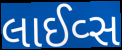
લાઈવ્સ